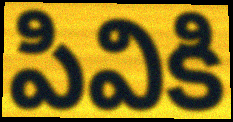
పివికి